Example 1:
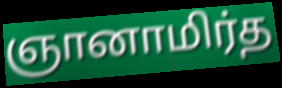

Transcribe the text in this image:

ஞானாமிர்த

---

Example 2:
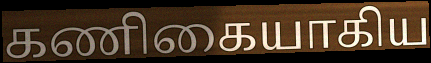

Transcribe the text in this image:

கணிகையாகிய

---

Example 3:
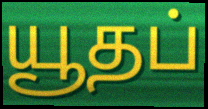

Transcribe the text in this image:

யூதப்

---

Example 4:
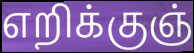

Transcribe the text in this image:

எறிக்குஞ்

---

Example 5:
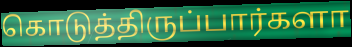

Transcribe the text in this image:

கொடுத்திருப்பார்களா